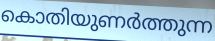
കൊതിയുണർത്തുന്ന